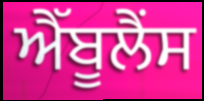
ਐੱਬੂਲੈਂਸ